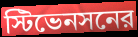
স্টিভেনসনের